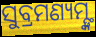
ସୁବ୍ରମଣ୍ୟମ୍ଙ୍କ